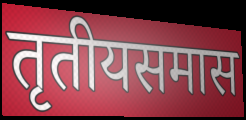
तृतीयसमास